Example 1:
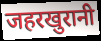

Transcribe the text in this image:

जहरखुरानी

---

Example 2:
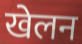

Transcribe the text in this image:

खेलन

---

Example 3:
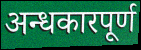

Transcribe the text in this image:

अन्धकारपूर्ण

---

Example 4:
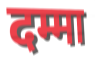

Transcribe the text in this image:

दम्मा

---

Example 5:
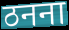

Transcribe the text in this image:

ठनना